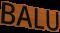
BALU